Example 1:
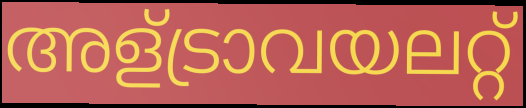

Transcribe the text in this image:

അള്ട്രാവയലറ്റ്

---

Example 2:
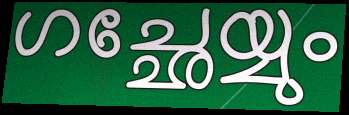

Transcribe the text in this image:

ഗച്ഛേയ്യും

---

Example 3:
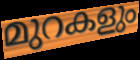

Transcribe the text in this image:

മുറകളും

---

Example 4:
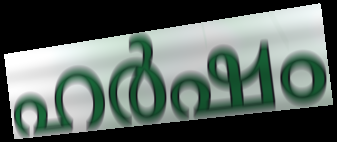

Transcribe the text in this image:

ഹർഷം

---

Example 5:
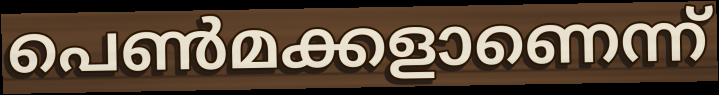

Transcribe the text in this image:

പെൺമക്കളാണെന്ന്